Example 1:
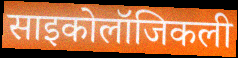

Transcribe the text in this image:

साइकोलॉजिकली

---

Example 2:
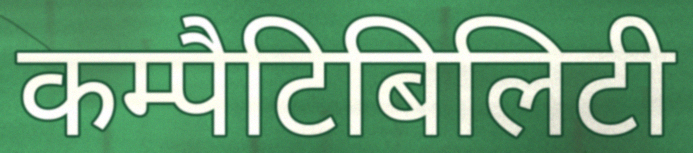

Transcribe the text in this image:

कम्पैटिबिलिटी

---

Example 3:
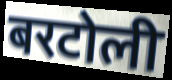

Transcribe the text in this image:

बरटोली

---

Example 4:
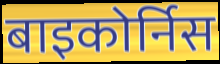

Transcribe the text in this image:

बाइकोर्निस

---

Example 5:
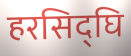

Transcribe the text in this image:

हरसिद्घि